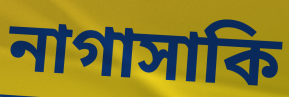
নাগাসাকি